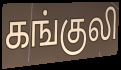
கங்குலி